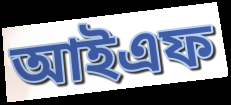
আইএফ